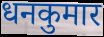
धनकुमार